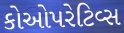
કોઓપરેટિવ્સ